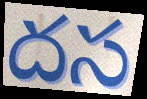
దస